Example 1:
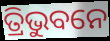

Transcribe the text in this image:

ତ୍ରିଭୁବନେ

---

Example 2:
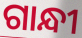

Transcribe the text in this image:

ଗାନ୍ଧୀ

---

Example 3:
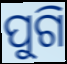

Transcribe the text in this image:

ପୁଗି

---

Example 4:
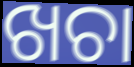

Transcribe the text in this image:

ଖଚା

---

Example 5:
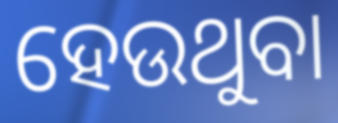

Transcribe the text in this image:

ହେଉଥୁବା